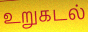
உறுகடல்